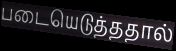
படையெடுத்ததால்